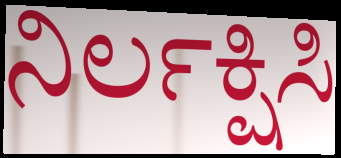
ನಿರ್ಲಕ್ಷಿಸಿ